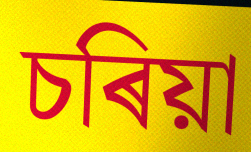
চৰিয়া